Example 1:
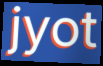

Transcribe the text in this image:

jyot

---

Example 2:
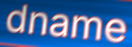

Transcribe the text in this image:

dname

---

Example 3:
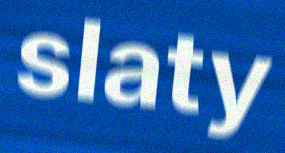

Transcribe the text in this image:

slaty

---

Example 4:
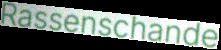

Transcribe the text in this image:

Rassenschande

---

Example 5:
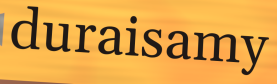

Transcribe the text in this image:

duraisamy